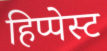
हिप्पेस्ट